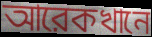
আরেকখানে